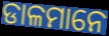
ଡାଳମାନେ